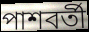
পাশবর্তী